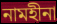
নামহীনা